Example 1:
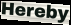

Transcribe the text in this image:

Hereby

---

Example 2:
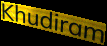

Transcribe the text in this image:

Khudiram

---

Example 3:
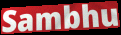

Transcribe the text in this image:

Sambhu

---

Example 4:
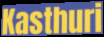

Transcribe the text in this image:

Kasthuri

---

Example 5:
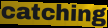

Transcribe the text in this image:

catching